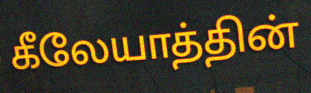
கீலேயாத்தின்